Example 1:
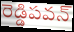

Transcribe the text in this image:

రెడ్డిపవన్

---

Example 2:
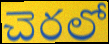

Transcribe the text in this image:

చెరలో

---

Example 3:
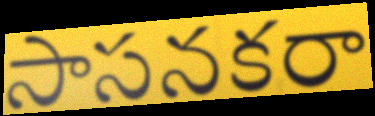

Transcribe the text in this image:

సాసనకరా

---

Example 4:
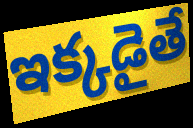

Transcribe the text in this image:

ఇక్కడైతే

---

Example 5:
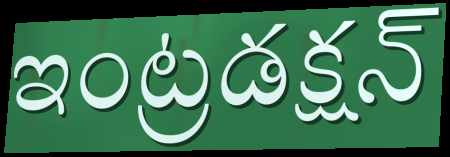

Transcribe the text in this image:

ఇంట్రడక్షన్